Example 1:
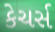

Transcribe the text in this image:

કેચર્સ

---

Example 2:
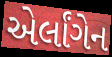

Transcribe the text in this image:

એર્લાંગેન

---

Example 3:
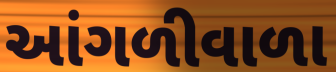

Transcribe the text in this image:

આંગળીવાળા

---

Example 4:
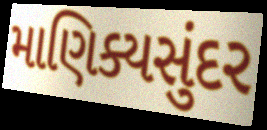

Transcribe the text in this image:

માણિક્યસુંદર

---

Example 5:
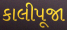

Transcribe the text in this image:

કાલીપૂજા